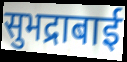
सुभद्राबाई